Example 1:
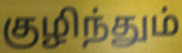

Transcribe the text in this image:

குழிந்தும்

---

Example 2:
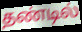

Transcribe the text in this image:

தண்டில்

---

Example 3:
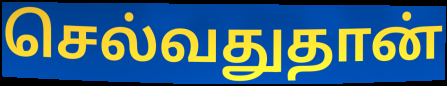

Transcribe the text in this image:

செல்வதுதான்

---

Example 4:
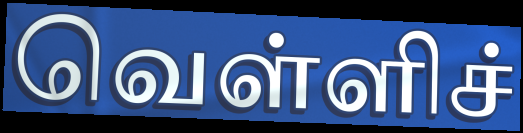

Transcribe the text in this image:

வெள்ளிச்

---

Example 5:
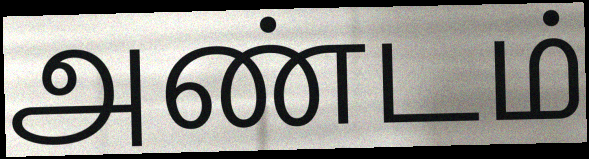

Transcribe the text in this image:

அண்டம்